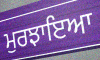
ਮੁਰਝਾਇਆ